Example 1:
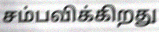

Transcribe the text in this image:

சம்பவிக்கிறது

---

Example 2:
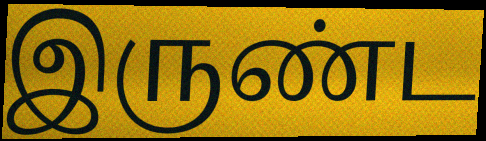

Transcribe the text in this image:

இருண்ட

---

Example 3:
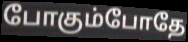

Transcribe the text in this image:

போகும்போதே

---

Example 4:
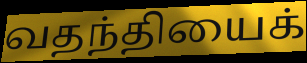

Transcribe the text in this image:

வதந்தியைக்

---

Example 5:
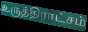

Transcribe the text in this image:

உருத்திராட்சம்